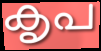
കൃപ